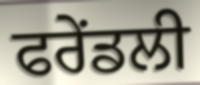
ਫਰੇਂਡਲੀ